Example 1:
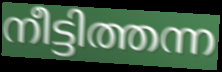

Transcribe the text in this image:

നീട്ടിത്തന്ന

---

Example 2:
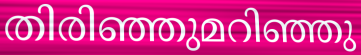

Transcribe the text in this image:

തിരിഞ്ഞുമറിഞ്ഞു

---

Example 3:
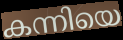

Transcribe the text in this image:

കന്നിയെ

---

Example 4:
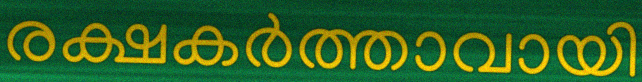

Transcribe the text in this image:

രക്ഷകർത്താവായി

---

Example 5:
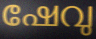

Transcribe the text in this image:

ഷേവു